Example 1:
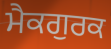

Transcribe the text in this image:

ਮੈਕਗੁਰਕ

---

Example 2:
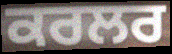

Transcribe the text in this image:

ਕਰਲਰ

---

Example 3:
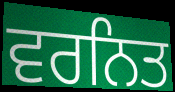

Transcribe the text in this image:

ਵਰਨਿਤ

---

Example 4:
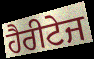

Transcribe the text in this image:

ਹੈਰੀਟੇਜ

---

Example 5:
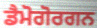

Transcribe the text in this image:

ਡੈਮੋਗੋਰਗਨ